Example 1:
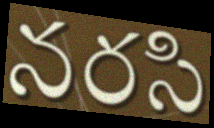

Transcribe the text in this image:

నరసి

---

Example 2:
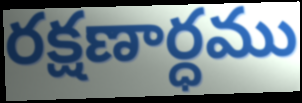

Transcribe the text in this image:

రక్షణార్ధము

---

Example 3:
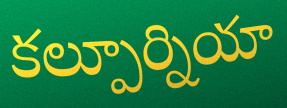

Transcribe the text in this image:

కల్పూర్నియా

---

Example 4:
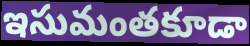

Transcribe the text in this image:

ఇసుమంతకూడా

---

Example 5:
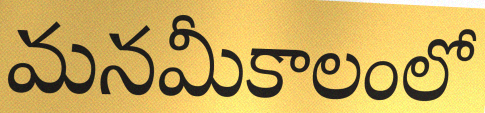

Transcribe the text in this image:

మనమీకాలంలో